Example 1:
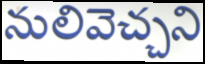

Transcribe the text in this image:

నులివెచ్చని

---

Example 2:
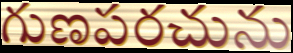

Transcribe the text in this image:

గుణపరచును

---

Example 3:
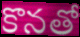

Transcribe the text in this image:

కొనతో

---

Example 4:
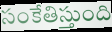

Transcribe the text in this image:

సంకేతిస్తుంది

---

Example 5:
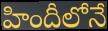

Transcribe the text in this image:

హిందీలోనే